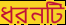
ধরনটি